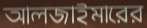
আলজাইমারের